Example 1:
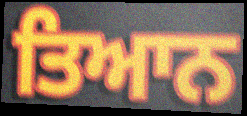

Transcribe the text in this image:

ਤਿਆਨ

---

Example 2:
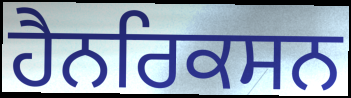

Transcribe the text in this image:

ਹੈਨਰਿਕਸਨ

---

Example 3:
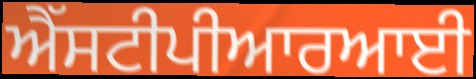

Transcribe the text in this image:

ਐੱਸਟੀਪੀਆਰਆਈ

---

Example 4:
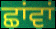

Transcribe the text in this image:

ਛਾਂਵਾਂ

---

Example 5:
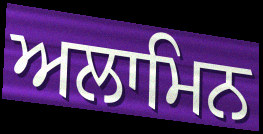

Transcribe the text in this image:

ਅਲਾਮਿਨ